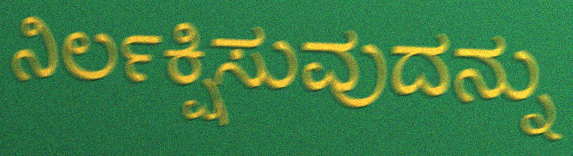
ನಿರ್ಲಕ್ಷಿಸುವುದನ್ನು